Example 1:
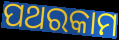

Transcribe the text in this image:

ପଥରକାମ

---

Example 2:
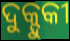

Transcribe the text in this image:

ଦୁକ୍ଦୁକୀ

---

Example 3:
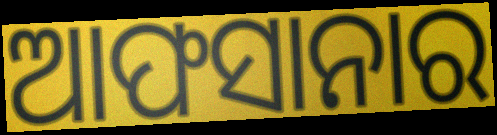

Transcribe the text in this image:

ଆଫସାନାର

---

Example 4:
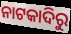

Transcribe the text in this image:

ନାଟକାଦିରୁ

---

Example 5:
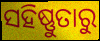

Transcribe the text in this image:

ସହିଷ୍ଣୁତାରୁ